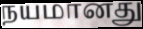
நயமானது